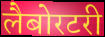
लैबोरटरी